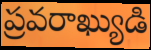
ప్రవరాఖ్యుడి